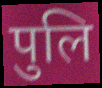
पुलि